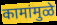
कामांमुळे